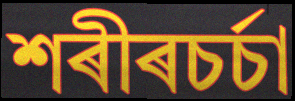
শৰীৰচৰ্চা